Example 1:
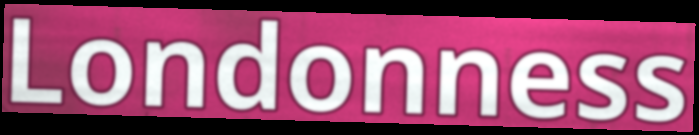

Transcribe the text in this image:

Londonness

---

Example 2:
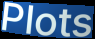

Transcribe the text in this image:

Plots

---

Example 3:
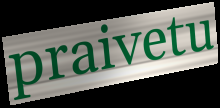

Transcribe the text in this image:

praivetu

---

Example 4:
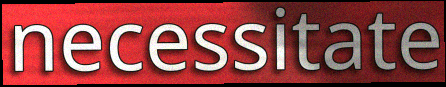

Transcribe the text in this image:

necessitate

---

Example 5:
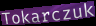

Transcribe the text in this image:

Tokarczuk